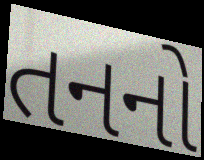
તનનો